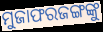
ମୁଜାଫରଜଙ୍ଗଙ୍କୁ